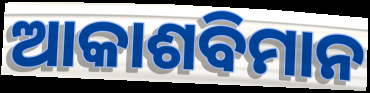
ଆକାଶବିମାନ